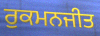
ਰੁਕਮਨਜੀਤ